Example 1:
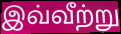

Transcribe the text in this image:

இவ்வீற்று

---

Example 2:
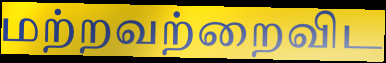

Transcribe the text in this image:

மற்றவற்றைவிட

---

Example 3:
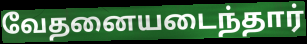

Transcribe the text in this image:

வேதனையடைந்தார்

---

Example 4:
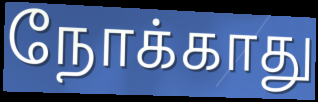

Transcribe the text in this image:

நோக்காது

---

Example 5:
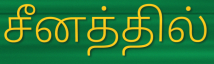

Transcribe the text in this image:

சீனத்தில்